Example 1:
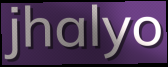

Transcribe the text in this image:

jhalyo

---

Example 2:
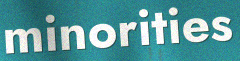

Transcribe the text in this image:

minorities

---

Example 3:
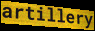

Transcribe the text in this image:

artillery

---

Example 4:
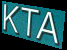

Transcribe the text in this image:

KTA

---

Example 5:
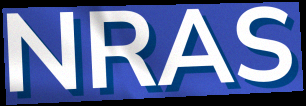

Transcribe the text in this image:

NRAS